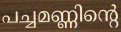
പച്ചമണ്ണിന്റെ